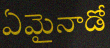
ఏమైనాడో